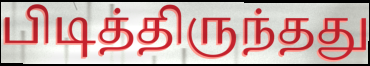
பிடித்திருந்தது